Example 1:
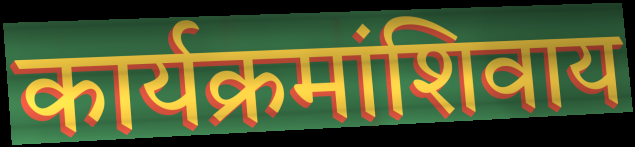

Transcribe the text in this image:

कार्यक्रमांशिवाय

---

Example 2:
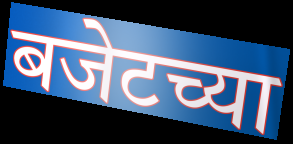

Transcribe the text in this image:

बजेटच्या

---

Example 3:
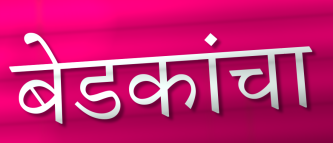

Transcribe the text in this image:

बेडकांचा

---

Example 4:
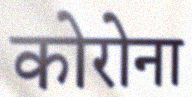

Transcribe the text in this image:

कोरोना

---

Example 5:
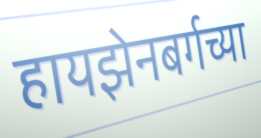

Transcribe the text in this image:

हायझेनबर्गच्या